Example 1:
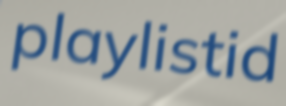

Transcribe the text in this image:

playlistid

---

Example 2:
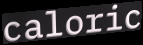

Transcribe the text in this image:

caloric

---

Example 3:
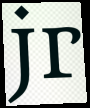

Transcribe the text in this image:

jr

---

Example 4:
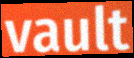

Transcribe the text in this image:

vault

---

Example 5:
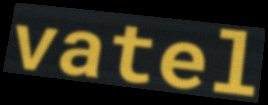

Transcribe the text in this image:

vatel